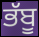
ਭੱਬੂ